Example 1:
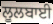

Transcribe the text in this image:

ਲੂਲਬਾਈ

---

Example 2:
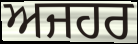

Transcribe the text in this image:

ਅਜਹਰ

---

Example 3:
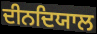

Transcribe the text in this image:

ਦੀਨਦਿਯਾਲ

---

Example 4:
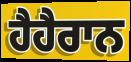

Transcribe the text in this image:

ਹੈਹੈਰਾਨ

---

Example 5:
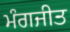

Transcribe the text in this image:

ਮੰਗਜੀਤ